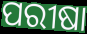
ପରୀଷା